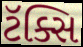
ટૅક્સિ